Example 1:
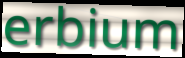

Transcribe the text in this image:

erbium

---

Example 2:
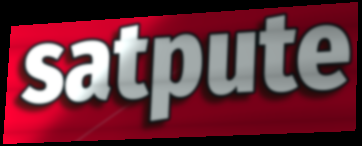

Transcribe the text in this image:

satpute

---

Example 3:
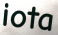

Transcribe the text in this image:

iota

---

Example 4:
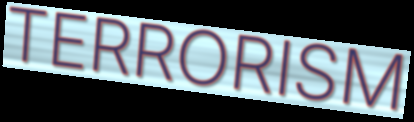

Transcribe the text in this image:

TERRORISM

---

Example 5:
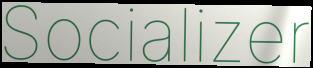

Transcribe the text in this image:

Socializer